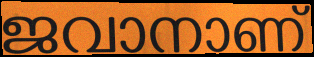
ജവാനാണ്